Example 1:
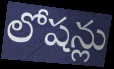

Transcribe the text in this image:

లోషన్లు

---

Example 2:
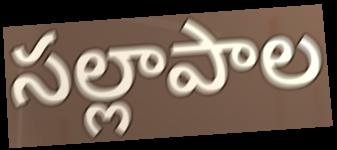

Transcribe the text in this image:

సల్లాపాల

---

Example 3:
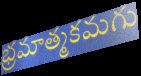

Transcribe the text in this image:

భ్రమాత్మకమగు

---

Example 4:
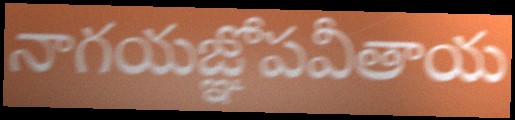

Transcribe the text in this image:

నాగయజ్ఞోపవీతాయ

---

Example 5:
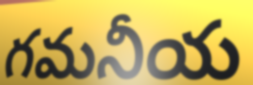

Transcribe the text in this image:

గమనీయ